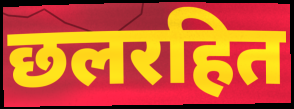
छलरहित